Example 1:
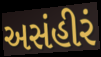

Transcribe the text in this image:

અસંહીરં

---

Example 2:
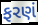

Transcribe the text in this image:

ફરણં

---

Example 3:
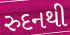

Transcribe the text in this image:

રુદનથી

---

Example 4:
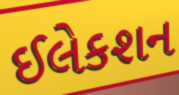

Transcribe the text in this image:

ઈલેકશન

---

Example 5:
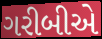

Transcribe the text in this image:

ગરીબીએ